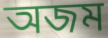
অজম